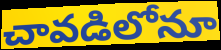
చావడిలోనూ